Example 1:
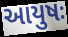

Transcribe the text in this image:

આયુષઃ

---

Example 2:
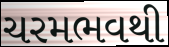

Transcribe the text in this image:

ચરમભવથી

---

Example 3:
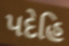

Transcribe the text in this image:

પદેહિ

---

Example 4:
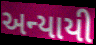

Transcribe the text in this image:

અન્યાયી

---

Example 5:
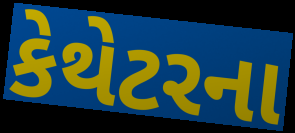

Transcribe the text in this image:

કેથેટરના